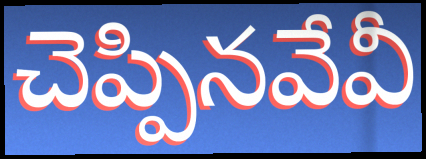
చెప్పినవేవీ